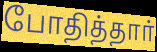
போதித்தார்